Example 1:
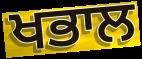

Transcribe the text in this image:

ਖਭਾਲ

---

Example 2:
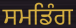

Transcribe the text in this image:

ਸਮਡਿੰਗ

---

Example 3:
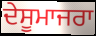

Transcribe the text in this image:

ਦੇਸੂਮਾਜਰਾ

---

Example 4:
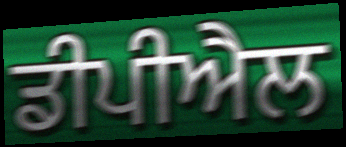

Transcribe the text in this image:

ਡੀਪੀਐਲ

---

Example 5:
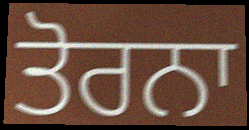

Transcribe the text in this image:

ਤੋਰਨਾ